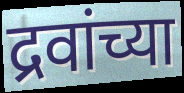
द्रवांच्या